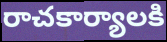
రాచకార్యాలకి